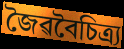
জৈৱবৈচিত্ৰ্য